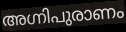
അഗ്നിപുരാണം